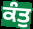
ਕੰਤੁ